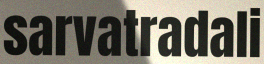
sarvatradali